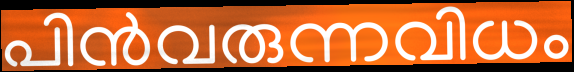
പിൻവരുന്നവിധം